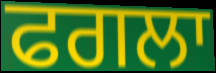
ਫਗਲਾ